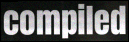
compiled